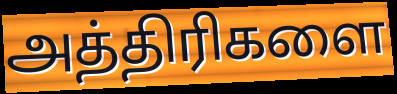
அத்திரிகளை